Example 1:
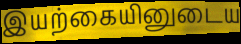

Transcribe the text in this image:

இயற்கையினுடைய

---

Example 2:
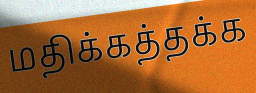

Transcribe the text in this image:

மதிக்கத்தக்க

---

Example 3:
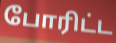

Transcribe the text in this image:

போரிட்ட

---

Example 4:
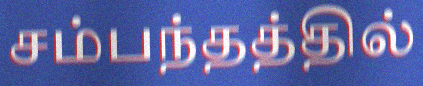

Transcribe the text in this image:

சம்பந்தத்தில்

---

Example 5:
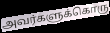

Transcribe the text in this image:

அவர்களுக்கொரு